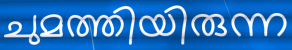
ചുമത്തിയിരുന്ന